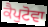
ਕੈਪੁਟੋਵਾ